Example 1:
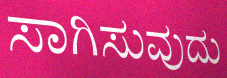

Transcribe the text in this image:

ಸಾಗಿಸುವುದು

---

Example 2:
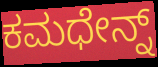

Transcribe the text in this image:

ಕಮಧೇನ್ನ್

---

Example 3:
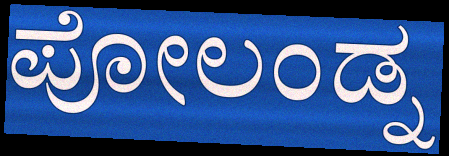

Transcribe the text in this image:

ಪೋಲಂಡ್ನ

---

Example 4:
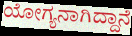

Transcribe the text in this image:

ಯೋಗ್ಯನಾಗಿದ್ದಾನೆ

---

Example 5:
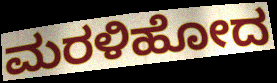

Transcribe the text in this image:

ಮರಳಿಹೋದ